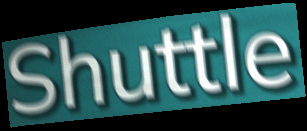
Shuttle